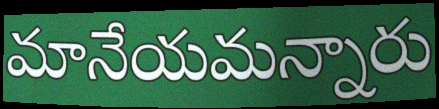
మానేయమన్నారు